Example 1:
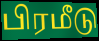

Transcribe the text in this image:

பிரமீடு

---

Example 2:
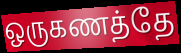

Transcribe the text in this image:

ஒருகணத்தே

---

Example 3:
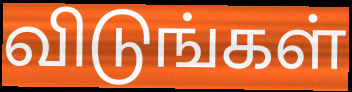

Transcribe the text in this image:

விடுங்கள்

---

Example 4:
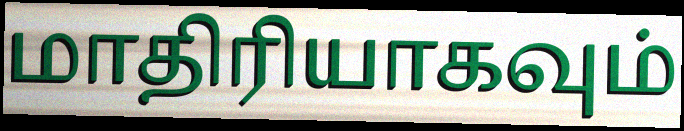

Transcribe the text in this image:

மாதிரியாகவும்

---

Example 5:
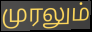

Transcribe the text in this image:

முரலும்